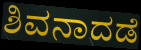
ಶಿವನಾದಡೆ